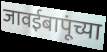
जावईबापूंच्या